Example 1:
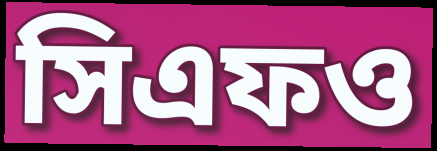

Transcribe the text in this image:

সিএফও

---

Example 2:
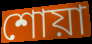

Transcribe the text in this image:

শোয়া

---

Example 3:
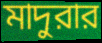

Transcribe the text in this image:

মাদুরার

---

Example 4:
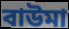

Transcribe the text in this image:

বাউমা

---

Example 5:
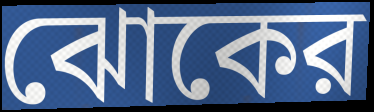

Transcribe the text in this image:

ঝোকের